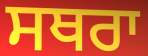
ਸਥਰਾ